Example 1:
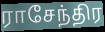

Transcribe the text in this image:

ராசேந்திர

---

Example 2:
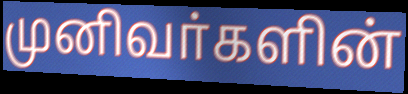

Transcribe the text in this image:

முனிவர்களின்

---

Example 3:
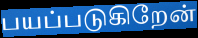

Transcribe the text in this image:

பயப்படுகிறேன்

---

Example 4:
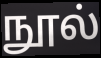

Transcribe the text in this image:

நூல்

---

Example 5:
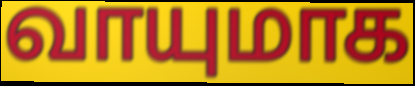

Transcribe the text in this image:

வாயுமாக